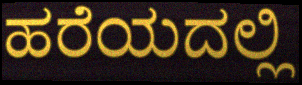
ಹರೆಯದಲ್ಲಿ